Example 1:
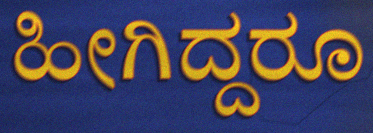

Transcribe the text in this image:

ಹೀಗಿದ್ದರೂ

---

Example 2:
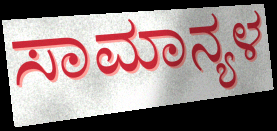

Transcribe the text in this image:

ಸಾಮಾನ್ಯಳ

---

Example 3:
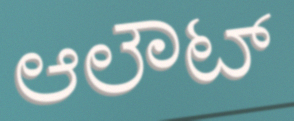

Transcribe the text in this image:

ಆಲೌಟ್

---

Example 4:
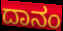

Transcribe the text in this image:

ದಾನಂ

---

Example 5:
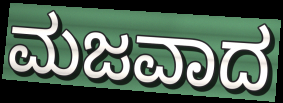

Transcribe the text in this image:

ಮಜವಾದ